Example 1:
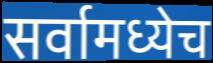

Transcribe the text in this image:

सर्वामध्येच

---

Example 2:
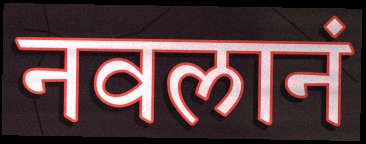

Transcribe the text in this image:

नवलानं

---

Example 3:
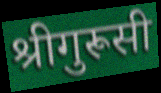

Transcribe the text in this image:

श्रीगुरूसी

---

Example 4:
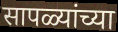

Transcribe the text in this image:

सापळ्यांच्या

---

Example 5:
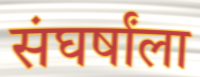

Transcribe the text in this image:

संघर्षांला